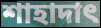
শাহাদাৎ